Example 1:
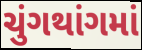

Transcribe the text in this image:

ચુંગથાંગમાં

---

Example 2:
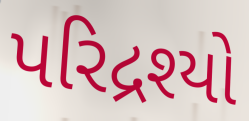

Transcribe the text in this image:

પરિદ્રશ્યો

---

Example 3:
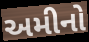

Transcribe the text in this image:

અમીનો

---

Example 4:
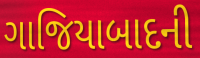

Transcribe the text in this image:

ગાજિયાબાદની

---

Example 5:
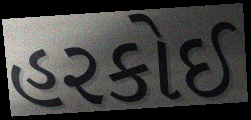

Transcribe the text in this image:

હરકોઈ